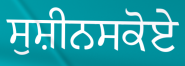
ਸੁਸ਼ੀਨਸਕੋਏ